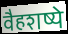
वैहशष्ये